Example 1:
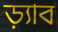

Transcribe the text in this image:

ড়্যাব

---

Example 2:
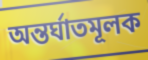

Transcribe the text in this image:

অন্তর্ঘাতমূলক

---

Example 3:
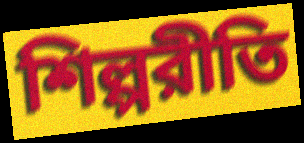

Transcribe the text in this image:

শিল্পরীতি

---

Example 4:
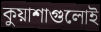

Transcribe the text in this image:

কুয়াশাগুলোই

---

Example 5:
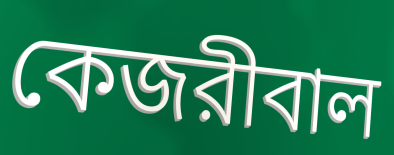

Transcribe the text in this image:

কেজরীবাল